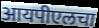
आयपीएलचा